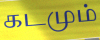
கடமும்